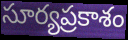
సూర్యప్రకాశం